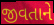
જીવતાને